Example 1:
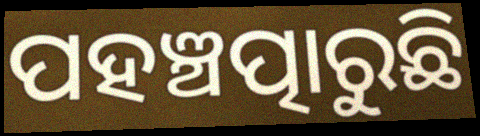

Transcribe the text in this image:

ପହଞ୍ଚତ୍ପାରୁଛି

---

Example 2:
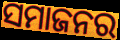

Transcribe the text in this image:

ସମାଜନର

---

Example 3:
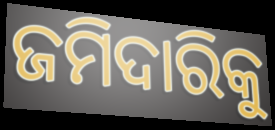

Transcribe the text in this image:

ଜମିଦାରିକୁ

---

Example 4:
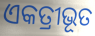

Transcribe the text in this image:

ଏକତ୍ରୀଭୂତ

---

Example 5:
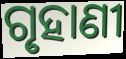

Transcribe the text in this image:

ଗୃହାଣୀ